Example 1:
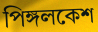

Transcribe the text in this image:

পিঙ্গলকেশ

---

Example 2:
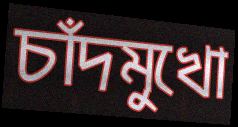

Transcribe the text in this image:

চাঁদমুখো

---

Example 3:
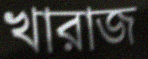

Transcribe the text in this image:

খারাজ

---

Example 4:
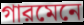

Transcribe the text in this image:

গারমেনে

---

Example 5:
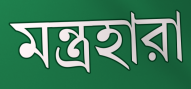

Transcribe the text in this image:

মন্ত্রহারা